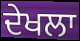
ਦੇਖਲਾ